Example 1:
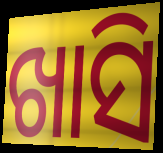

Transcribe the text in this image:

ଖାସି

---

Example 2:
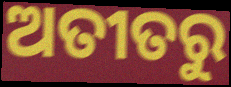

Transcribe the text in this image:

ଅତୀତରୁ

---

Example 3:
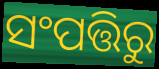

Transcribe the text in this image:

ସଂପତ୍ତିରୁ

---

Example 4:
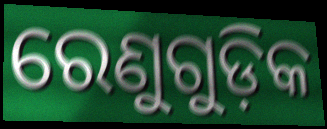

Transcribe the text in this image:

ରେଣୁଗୁଡ଼ିକ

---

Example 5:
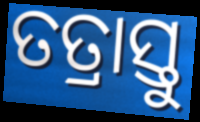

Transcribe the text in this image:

ତତ୍ରାସ୍ତୁ